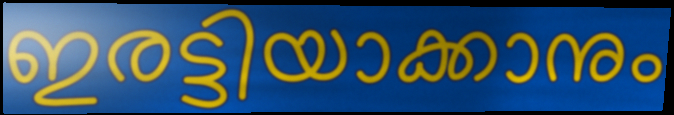
ഇരട്ടിയാക്കാനും